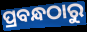
ପ୍ରବନ୍ଧଠାରୁ